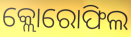
କ୍ଲୋରୋଫିଲ